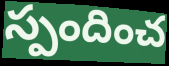
స్పందించ